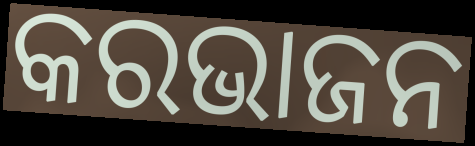
କରଭାଜନ